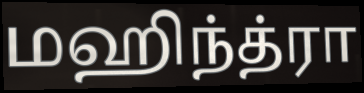
மஹிந்த்ரா